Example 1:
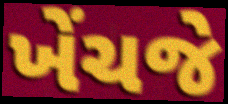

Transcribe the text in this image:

ખેંચજે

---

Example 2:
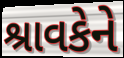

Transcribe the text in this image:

શ્રાવકેને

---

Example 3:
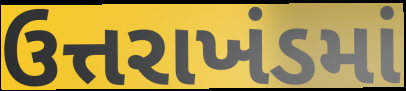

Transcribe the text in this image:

ઉત્તરાખંડમાં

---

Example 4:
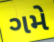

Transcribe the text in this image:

ગમે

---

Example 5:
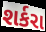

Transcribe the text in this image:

શર્કરા